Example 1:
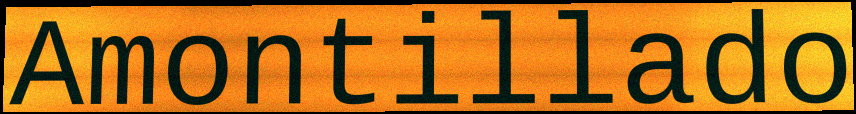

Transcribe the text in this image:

Amontillado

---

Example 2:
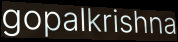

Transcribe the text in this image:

gopalkrishna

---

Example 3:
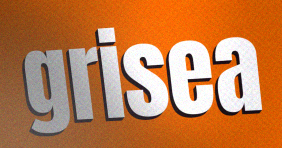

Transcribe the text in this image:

grisea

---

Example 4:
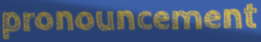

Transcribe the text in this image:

pronouncement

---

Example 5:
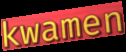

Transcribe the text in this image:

kwamen